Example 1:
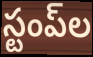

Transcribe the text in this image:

స్టంప్‌ల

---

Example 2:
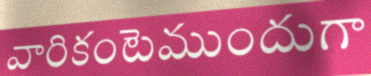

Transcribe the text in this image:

వారికంటెముందుగా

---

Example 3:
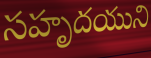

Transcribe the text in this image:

సహృదయుని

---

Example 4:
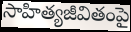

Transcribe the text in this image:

సాహిత్యజీవితంపై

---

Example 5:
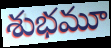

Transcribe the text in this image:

శుభమూ